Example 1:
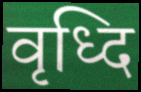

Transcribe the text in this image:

वृध्दि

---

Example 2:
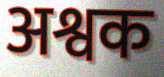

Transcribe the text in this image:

अश्वक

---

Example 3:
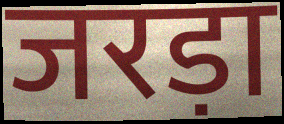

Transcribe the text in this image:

जरड़ा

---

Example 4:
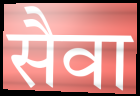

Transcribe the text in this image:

सैवा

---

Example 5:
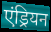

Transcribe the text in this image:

एंड्रियन